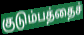
குடும்பத்தைச்